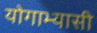
योगाभ्यासी